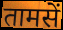
तामसें